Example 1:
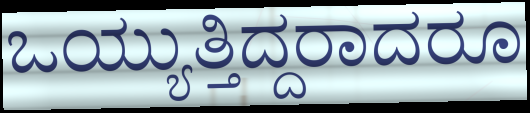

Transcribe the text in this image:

ಒಯ್ಯುತ್ತಿದ್ದರಾದರೂ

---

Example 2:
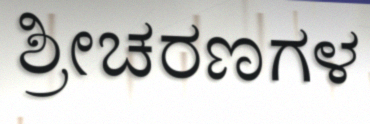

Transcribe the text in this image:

ಶ್ರೀಚರಣಗಳ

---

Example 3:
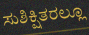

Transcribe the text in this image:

ಸುಶಿಕ್ಷಿತರಲ್ಲೂ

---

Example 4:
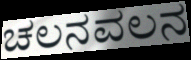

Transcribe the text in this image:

ಚಲನವಲನ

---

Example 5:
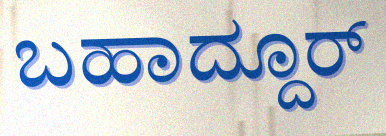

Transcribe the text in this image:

ಬಹಾದ್ದೂರ್